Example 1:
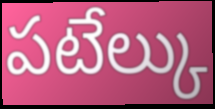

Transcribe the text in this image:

పటేల్కు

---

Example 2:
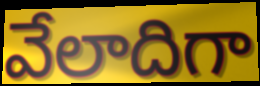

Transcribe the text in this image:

వేలాదిగా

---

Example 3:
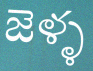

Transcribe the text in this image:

జెళ్ళ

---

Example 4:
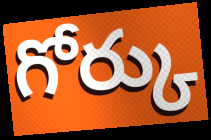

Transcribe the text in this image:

గోర్కు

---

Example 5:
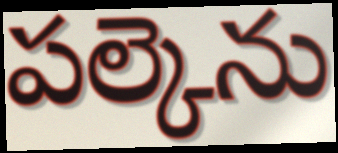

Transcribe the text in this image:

పల్కెను